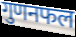
गुणनफल